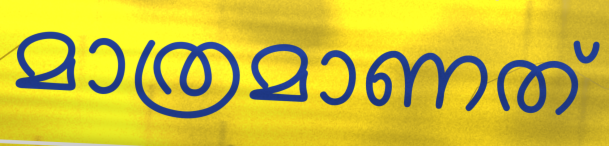
മാത്രമാണത്